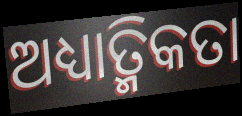
ଅଧ୍ୟାତ୍ମିକତା